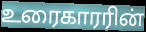
உரைகாரரின்